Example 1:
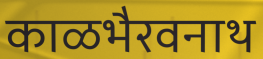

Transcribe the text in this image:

काळभैरवनाथ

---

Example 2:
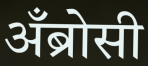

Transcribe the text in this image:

अँब्रोसी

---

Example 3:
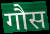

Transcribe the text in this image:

गौस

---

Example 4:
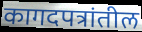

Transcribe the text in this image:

कागदपत्रांतील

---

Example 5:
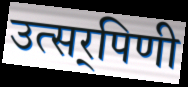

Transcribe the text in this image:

उत्सर्पिणी